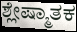
ಶ್ಲೇಷ್ಮಾತಕ